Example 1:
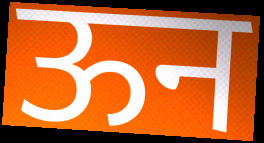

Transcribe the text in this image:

ऊन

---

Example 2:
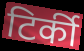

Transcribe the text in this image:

टिर्की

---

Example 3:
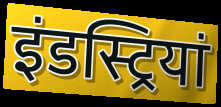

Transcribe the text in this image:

इंडस्ट्रियां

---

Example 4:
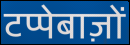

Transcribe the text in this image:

टप्पेबाज़ों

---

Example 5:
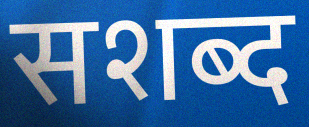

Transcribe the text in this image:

सशब्द